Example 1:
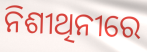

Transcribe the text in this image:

ନିଶୀଥିନୀରେ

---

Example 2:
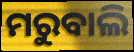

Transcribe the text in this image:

ମରୁବାଲି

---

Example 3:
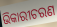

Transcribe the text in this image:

ଭିକାରୀଚରଣ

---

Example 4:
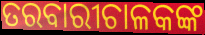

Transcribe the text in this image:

ତରବାରୀଚାଳକଙ୍କ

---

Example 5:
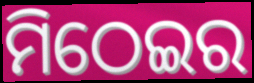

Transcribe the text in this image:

ମିଠେଇର